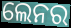
ଲେନର